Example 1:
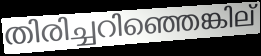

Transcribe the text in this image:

തിരിച്ചറിഞ്ഞെങ്കില്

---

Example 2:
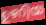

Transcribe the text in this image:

ഉഴറിയ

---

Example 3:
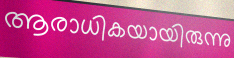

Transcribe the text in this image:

ആരാധികയായിരുന്നു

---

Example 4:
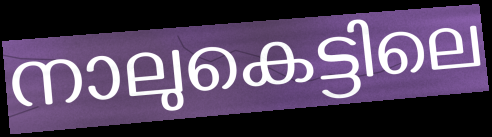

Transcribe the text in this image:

നാലുകെട്ടിലെ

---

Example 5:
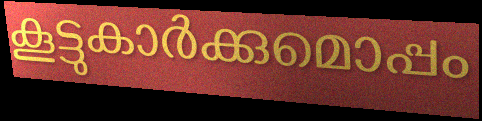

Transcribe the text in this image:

കൂട്ടുകാർക്കുമൊപ്പം